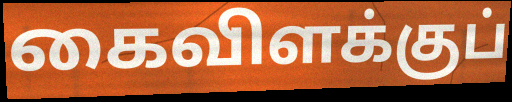
கைவிளக்குப்